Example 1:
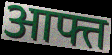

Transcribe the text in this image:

आफ्त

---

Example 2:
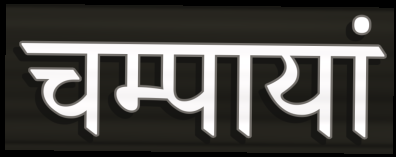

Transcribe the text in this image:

चम्पायां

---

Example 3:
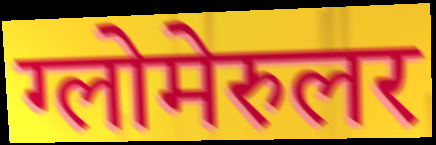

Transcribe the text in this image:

ग्लोमेरुलर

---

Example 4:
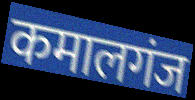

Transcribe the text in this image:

कमालगंज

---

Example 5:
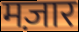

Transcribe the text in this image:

मज़ार